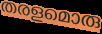
തരളമൊരു